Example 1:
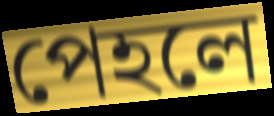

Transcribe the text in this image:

পেহলে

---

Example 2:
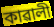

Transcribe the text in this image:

কাৱালী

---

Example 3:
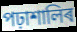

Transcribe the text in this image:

পঢ়াশালিৰ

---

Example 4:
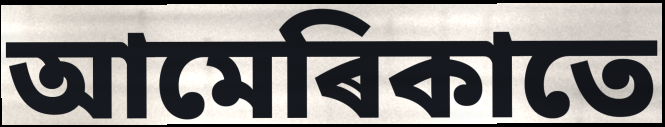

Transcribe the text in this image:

আমেৰিকাতে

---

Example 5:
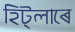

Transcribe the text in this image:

হিট্‌লাৰে